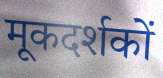
मूकदर्शकों